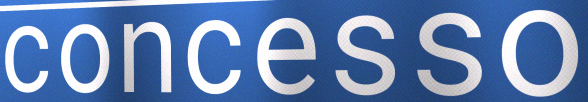
concesso